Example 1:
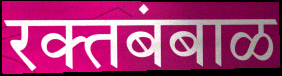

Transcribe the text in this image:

रक्‍तबंबाळ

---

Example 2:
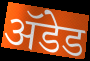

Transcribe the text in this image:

ॲडेड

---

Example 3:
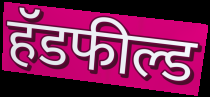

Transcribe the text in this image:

हॅडफील्ड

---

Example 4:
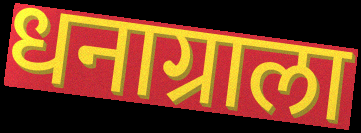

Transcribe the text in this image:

धनाग्राला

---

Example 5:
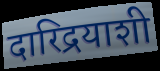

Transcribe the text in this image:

दारिद्रयाशी